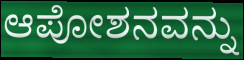
ಆಪೋಶನವನ್ನು